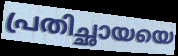
പ്രതിച്ഛായയെ